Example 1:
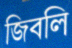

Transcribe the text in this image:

জিবলি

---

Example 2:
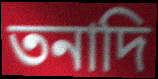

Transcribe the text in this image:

তনাদি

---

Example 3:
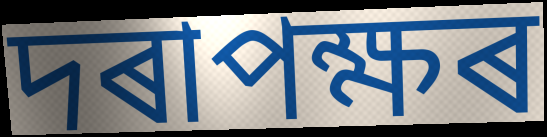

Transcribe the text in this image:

দৰাপক্ষৰ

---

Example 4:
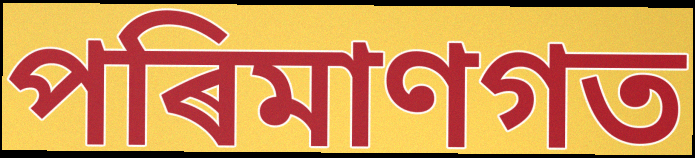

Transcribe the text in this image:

পৰিমাণগত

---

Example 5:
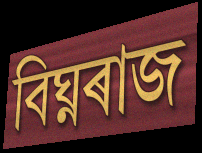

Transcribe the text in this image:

বিঘ্নৰাজ